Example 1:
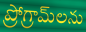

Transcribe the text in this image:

ప్రోగ్రామ్‌లను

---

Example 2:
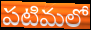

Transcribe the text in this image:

పటిమలో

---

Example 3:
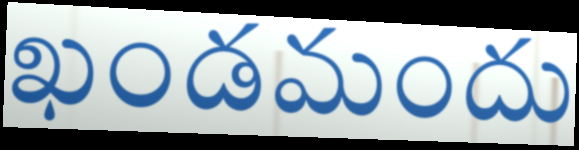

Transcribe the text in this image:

ఖండమందు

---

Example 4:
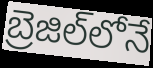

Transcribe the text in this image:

బ్రెజిల్‌లోనే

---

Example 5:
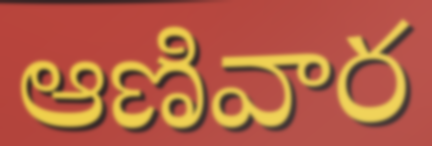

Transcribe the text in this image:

ఆణివార